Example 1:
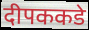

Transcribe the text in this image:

दीपककडे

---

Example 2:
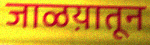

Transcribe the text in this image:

जाळय़ातून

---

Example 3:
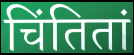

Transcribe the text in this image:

चिंतितां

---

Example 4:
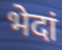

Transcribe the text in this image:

भेदां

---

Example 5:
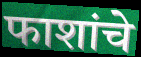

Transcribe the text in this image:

फाशांचे